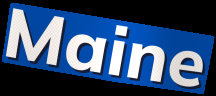
Maine